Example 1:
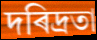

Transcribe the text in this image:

দৰিদ্ৰতা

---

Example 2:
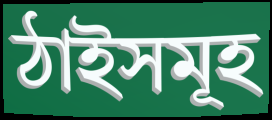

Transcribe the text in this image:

ঠাইসমূহ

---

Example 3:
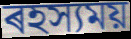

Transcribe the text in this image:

ৰহস্যময়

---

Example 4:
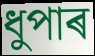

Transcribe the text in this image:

ধুপাৰ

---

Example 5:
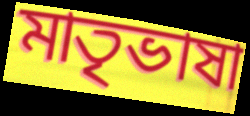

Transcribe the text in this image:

মাতৃভাষা